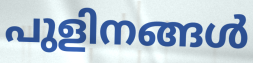
പുളിനങ്ങൾ